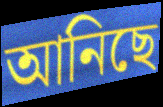
আনিছে